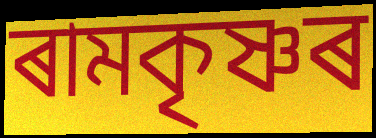
ৰামকৃষ্ণৰ